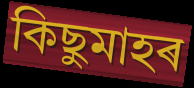
কিছুমাহৰ